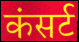
कंसर्ट